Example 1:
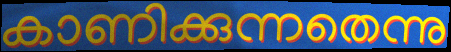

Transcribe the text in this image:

കാണിക്കുന്നതെന്നു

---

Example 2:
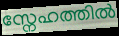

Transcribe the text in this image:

സ്നേഹത്തിൽ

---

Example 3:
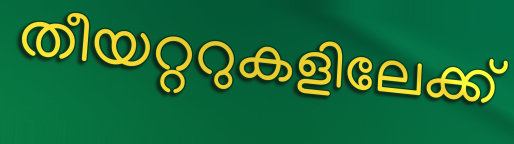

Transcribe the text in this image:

തീയറ്ററുകളിലേക്ക്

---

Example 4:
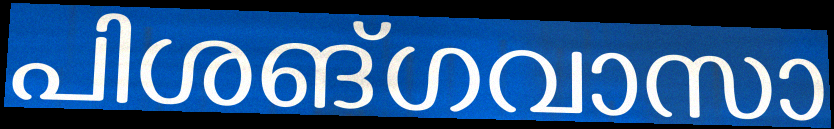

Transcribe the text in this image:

പിശങ്ഗവാസാ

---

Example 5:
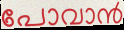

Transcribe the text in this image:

പോവാൻ